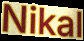
Nikal